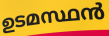
ഉടമസ്ഥൻ